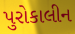
પુરોકાલીન